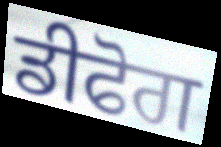
ਡੀਫੋਗ